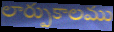
లార్పుకాలము